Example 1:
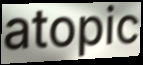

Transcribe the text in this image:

atopic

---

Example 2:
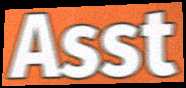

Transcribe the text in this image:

Asst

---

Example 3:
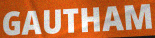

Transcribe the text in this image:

GAUTHAM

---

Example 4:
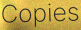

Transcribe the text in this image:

Copies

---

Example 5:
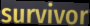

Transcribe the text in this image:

survivor